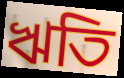
ঋতি